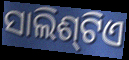
ସାଲିଶ୍‌ଟିଏ